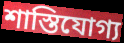
শাস্তিযোগ্য